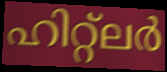
ഹിറ്റ്ലർ